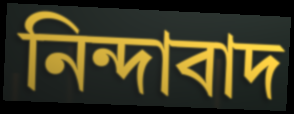
নিন্দাবাদ